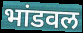
भांडवल